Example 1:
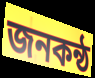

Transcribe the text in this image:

জনকন্ঠ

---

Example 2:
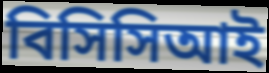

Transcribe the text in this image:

বিসিসিআই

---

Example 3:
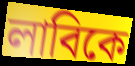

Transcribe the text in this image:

লাবিকে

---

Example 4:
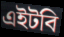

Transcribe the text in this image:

এইটবি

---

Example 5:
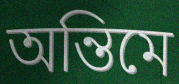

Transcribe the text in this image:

অন্তিমে